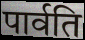
पार्वति